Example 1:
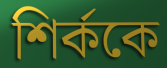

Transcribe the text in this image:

শির্ককে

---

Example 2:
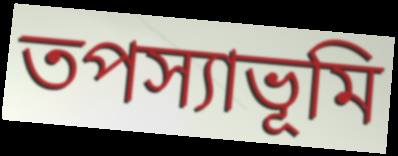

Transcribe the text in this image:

তপস্যাভূমি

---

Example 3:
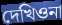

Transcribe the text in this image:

দেখিওনা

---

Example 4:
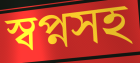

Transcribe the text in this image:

স্বপ্নসহ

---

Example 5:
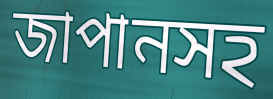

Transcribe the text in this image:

জাপানসহ